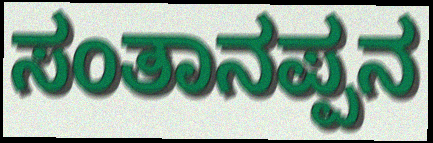
ಸಂತಾನಪ್ಪನ